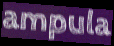
ampula